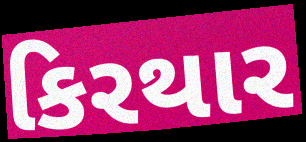
કિરથાર